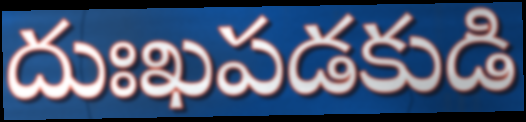
దుఃఖపడకుడి